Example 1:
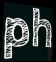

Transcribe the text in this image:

ph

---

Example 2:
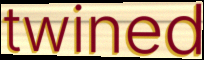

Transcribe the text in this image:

twined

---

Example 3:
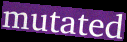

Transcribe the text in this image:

mutated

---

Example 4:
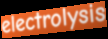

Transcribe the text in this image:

electrolysis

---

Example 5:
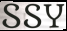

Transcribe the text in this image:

SSY